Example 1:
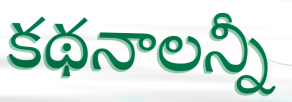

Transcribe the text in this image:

కథనాలన్నీ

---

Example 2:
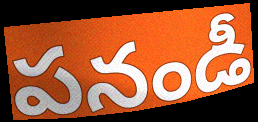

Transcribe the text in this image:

పనండీ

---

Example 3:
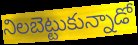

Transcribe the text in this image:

నిలబెట్టుకున్నాడో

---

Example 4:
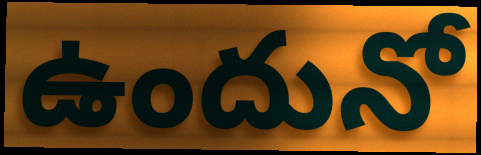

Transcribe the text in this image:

ఉందునో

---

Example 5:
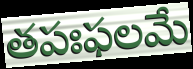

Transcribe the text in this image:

తపఃఫలమే